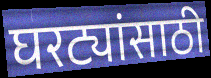
घरट्यांसाठी